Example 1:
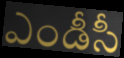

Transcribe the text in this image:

ఎండీసీ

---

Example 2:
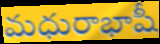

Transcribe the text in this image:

మధురాభాషీ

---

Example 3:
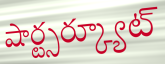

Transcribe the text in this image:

షార్ట్సర్క్యూట్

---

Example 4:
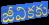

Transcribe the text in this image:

జీవికకు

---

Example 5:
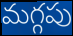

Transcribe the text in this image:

మగ్గపు